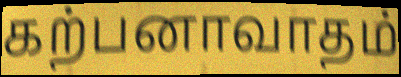
கற்பனாவாதம்